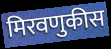
मिरवणुकीस